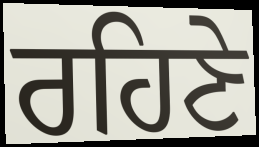
ਰਹਿਣੇ